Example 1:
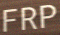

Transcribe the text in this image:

FRP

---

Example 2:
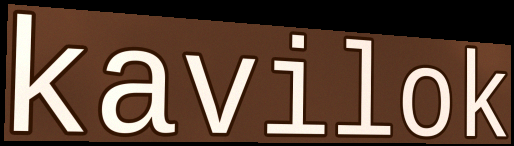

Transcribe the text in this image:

kavilok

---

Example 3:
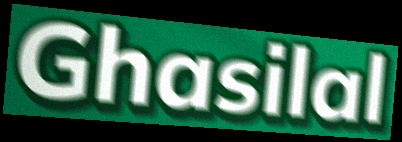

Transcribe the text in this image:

Ghasilal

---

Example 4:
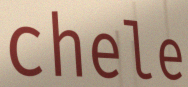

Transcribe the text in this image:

chele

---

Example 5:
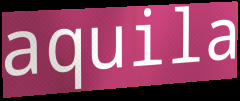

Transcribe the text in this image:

aquila